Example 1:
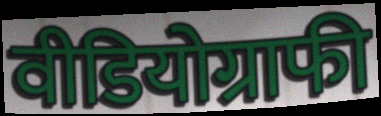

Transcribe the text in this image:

वीडियोग्राफी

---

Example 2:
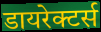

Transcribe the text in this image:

डायरेक्टर्स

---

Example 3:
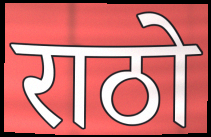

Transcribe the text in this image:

राठो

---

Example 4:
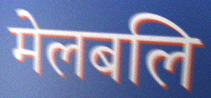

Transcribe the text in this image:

मेलबलि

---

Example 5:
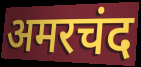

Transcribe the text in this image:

अमरचंद